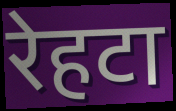
रेहटा